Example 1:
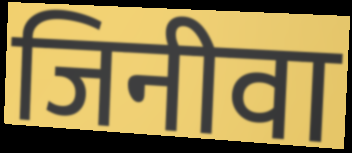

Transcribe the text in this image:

जिनीवा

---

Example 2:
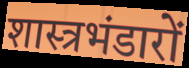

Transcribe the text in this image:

शास्त्रभंडारों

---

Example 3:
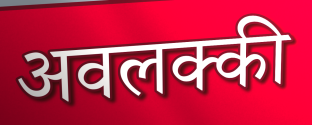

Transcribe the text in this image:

अवलक्की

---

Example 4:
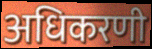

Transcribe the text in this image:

अधिकरणी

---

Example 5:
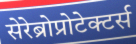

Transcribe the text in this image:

सेरेब्रोप्रोटेक्टर्स